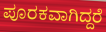
ಪೂರಕವಾಗಿದ್ದರೆ